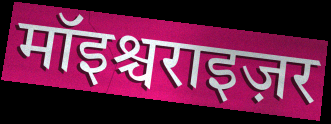
मॉइश्चराइज़र